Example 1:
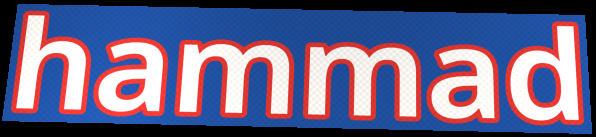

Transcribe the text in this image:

hammad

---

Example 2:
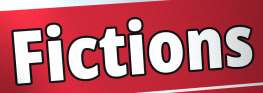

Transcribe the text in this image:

Fictions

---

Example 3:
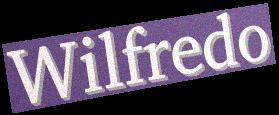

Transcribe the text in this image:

Wilfredo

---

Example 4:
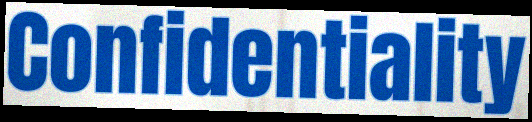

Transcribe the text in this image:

Confidentiality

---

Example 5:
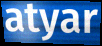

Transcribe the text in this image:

atyar